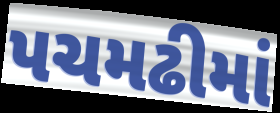
પચમઢીમાં